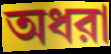
অধরা